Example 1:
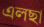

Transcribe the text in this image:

এলছা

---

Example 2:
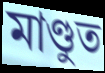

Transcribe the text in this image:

মাণ্ডুত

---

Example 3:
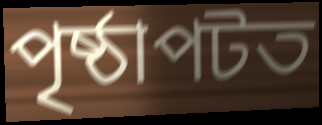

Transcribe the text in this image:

পৃষ্ঠাপটত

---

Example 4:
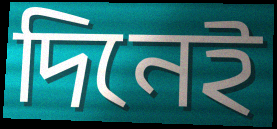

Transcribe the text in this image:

দিনেই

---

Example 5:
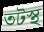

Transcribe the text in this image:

তটস্থ